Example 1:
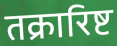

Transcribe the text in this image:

तक्रारिष्ट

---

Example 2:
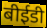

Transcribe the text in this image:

बीईडी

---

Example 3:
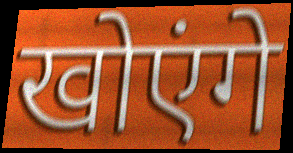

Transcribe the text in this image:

खोएंगे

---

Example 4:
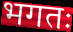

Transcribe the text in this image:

भगतः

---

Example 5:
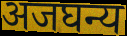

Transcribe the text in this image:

अजघन्य